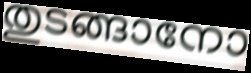
തുടങ്ങാനോ